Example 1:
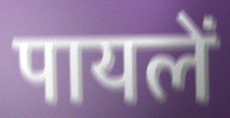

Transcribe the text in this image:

पायलें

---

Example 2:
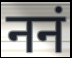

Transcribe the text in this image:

ननं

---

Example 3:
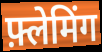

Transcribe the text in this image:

फ़्लेमिंग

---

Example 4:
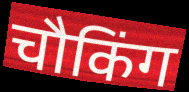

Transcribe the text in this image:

चौकिंग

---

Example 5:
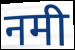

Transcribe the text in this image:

नमी